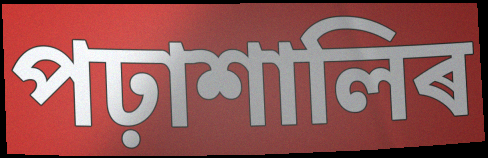
পঢ়াশালিৰ